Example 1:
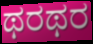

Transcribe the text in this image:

ಥರಥರ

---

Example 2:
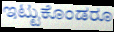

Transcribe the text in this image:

ಇಟ್ಟುಕೊಂಡರೂ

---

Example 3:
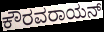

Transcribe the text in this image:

ಕೌರವರಾಯನ್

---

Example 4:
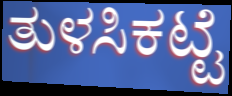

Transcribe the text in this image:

ತುಳಸಿಕಟ್ಟೆ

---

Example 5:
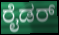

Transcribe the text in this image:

ರೈಡರ್